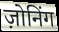
ज़ोनिंग